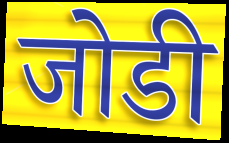
जोडी